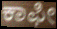
ಕಾಫೀ